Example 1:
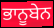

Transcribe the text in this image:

ਭਾਨੂਬੇਨ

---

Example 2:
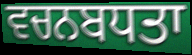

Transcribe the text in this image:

ਵਚਨਬਧਤਾ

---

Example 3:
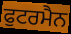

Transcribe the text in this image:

ਫੁਟਰਮੈਨ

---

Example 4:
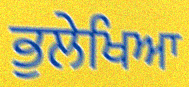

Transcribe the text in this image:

ਭੁਲੇਖਿਆ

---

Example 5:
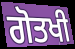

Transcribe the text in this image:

ਗੋਤਖੀ